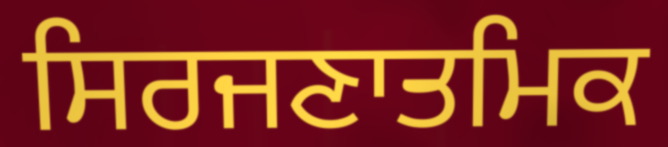
ਸਿਰਜਣਾਤਮਿਕ